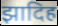
झादिह